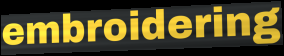
embroidering